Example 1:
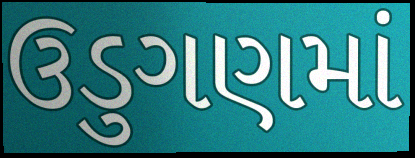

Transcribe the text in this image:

ઉડુગણમાં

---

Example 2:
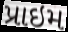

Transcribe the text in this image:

પ્રાઇમ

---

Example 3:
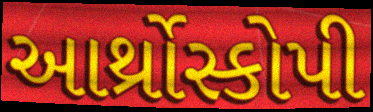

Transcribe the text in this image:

આર્થ્રોસ્કોપી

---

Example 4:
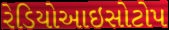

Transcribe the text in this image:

રેડિયોઆઇસોટોપ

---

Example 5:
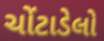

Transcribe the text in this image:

ચોંટાડેલો